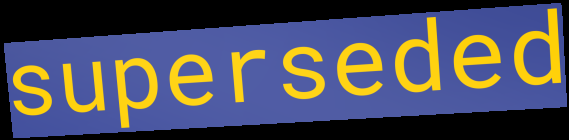
superseded